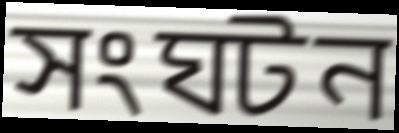
সংঘটন